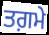
ਤਗ਼ਮੇ